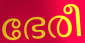
ഭേരീ